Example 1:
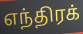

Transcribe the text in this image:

எந்திரக்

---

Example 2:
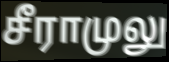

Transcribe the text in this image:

சீராமுலு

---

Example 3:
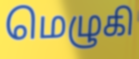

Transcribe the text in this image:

மெழுகி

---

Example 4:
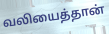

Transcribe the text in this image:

வலியைத்தான்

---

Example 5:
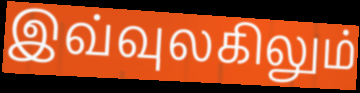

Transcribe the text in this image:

இவ்வுலகிலும்